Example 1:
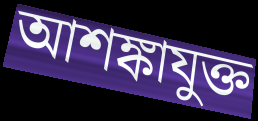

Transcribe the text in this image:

আশঙ্কাযুক্ত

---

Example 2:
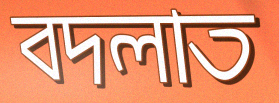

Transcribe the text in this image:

বদলাত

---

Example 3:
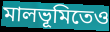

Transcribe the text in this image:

মালভূমিতেও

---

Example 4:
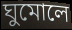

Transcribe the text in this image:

ঘুমোলে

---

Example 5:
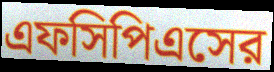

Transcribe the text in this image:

এফসিপিএসের